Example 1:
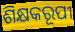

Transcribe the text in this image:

ଶିକ୍ଷକରୂପୀ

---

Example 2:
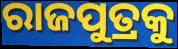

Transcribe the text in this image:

ରାଜପୁତ୍ରକୁ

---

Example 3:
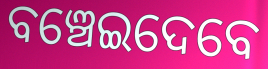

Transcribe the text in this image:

ବଞ୍ଚେଇଦେବେ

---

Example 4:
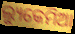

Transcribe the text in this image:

ଲ୍ୟୁକେମିଆ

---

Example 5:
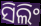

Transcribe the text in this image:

ସିଲିଂ